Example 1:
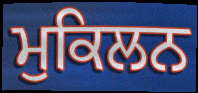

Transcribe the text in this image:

ਮੁਕਿਲਨ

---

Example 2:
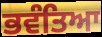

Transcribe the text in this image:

ਭਵੰਤਿਆ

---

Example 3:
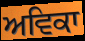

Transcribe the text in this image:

ਅਵਿਕਾ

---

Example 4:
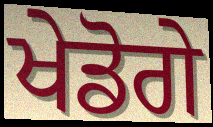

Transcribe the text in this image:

ਖੇਡੋਗੇ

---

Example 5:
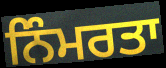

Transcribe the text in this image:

ਨਿੰਮਰਤਾ